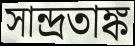
সান্দ্রতাঙ্ক